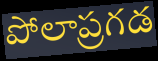
పోలాప్రగడ